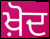
ਖ਼ੋਦ